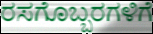
ರಸಗೊಬ್ಬರಗಳಿಗೆ